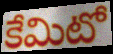
కేమిటో